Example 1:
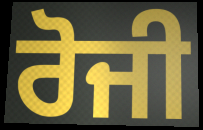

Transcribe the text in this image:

ਰੋਜੀ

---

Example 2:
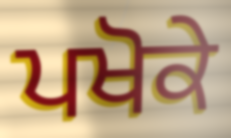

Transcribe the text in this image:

ਪਖੋਕੇ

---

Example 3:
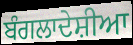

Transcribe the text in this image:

ਬੰਗਲਾਦੇਸ਼ੀਆ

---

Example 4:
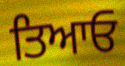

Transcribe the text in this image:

ਤਿਆਓ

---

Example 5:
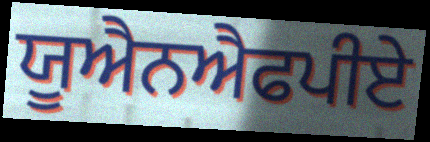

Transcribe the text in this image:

ਯੂਐਨਐਫਪੀਏ